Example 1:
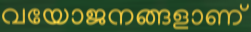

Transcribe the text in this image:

വയോജനങ്ങളാണ്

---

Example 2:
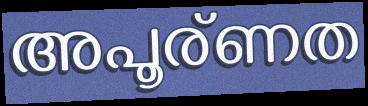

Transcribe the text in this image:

അപൂര്ണത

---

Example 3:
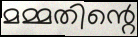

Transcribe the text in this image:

മമ്മതിന്റെ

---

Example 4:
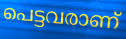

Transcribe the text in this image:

പെട്ടവരാണ്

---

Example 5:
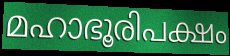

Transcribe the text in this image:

മഹാഭൂരിപക്ഷം